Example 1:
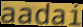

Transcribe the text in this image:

aadai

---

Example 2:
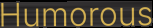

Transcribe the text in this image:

Humorous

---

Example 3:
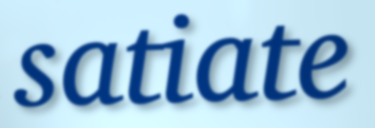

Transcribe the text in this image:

satiate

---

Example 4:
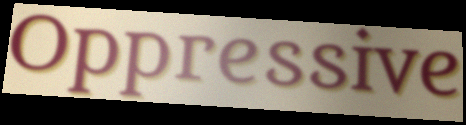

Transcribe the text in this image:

Oppressive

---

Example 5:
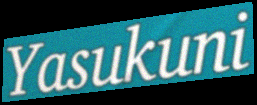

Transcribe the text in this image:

Yasukuni